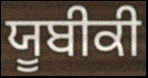
ਯੂਬੀਕੀ